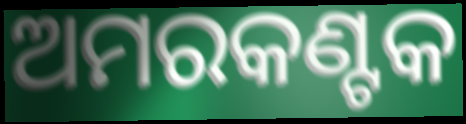
ଅମରକଣ୍ଟକ